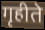
गृहीते